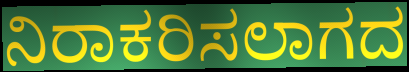
ನಿರಾಕರಿಸಲಾಗದ